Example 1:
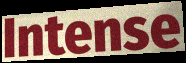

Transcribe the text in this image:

Intense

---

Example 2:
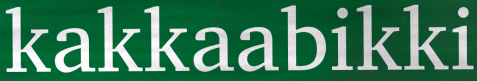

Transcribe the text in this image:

kakkaabikki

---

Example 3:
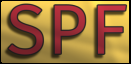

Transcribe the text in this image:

SPF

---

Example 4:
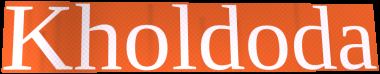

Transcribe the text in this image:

Kholdoda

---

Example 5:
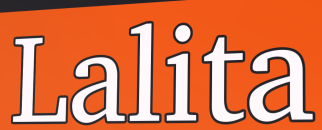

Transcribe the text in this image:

Lalita